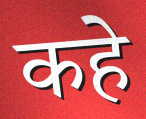
कहे